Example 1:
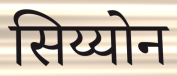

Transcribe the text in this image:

सिय्योन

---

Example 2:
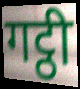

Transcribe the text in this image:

गट्ठी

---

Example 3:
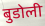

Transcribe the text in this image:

बुडोली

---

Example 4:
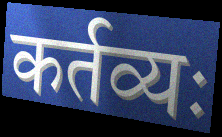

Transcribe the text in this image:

कर्तव्यः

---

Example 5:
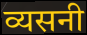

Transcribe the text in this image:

व्यसनी